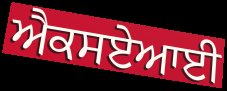
ਐਕਸਏਆਈ